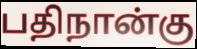
பதிநான்கு